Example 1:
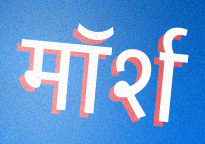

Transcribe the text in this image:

मॉर्श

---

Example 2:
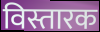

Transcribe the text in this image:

विस्तारक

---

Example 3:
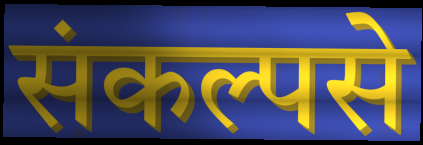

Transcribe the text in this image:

संकल्पसे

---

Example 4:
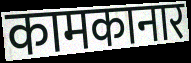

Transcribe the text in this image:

कामकानार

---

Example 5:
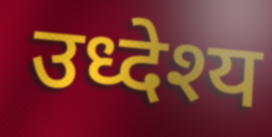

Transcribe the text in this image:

उध्देश्य